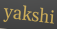
yakshi